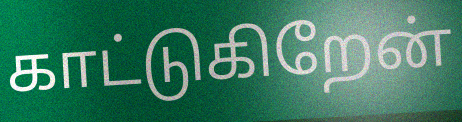
காட்டுகிறேன்